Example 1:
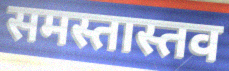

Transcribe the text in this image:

समस्तास्तव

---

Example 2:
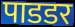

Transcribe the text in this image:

पाडडर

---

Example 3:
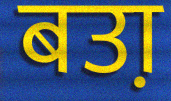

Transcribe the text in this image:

बउ़ा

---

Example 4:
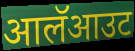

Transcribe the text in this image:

आलॅआउट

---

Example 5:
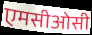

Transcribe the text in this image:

एमसीओसी